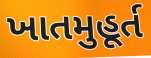
ખાતમુહૂર્ત